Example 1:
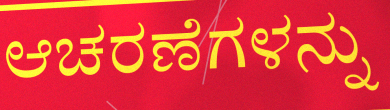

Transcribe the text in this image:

ಆಚರಣೆಗಳನ್ನು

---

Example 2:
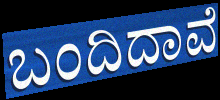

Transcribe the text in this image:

ಬಂದಿದಾವೆ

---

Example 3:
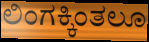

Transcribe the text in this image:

ಲಿಂಗಕ್ಕಿಂತಲೂ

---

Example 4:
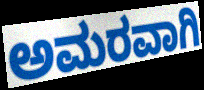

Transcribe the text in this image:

ಅಮರವಾಗಿ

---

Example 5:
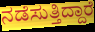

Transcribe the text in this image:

ನಡೆಸುತ್ತಿದ್ದಾರೆ